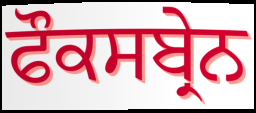
ਫੌਕਸਬ੍ਰੇਨ